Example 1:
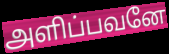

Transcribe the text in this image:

அளிப்பவனே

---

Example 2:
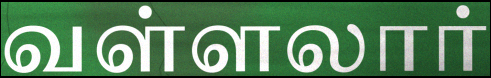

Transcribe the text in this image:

வள்ளலார்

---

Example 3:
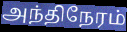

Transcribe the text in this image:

அந்திநேரம்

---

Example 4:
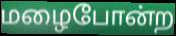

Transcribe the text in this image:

மழைபோன்ற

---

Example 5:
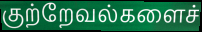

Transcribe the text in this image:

குற்றேவல்களைச்